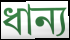
ধান্য